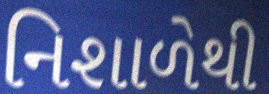
નિશાળેથી